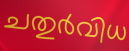
ചതുർവിധ